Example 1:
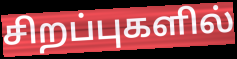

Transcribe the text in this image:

சிறப்புகளில்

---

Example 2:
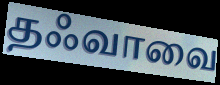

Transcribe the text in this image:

தஃவாவை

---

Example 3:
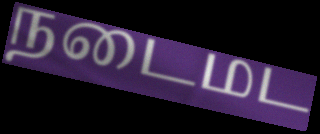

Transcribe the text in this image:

நடைமட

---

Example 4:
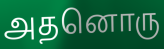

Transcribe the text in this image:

அதனொரு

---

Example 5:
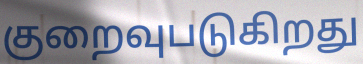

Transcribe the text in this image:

குறைவுபடுகிறது